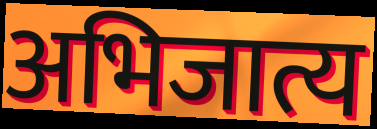
अभिजात्य